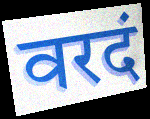
वरदं